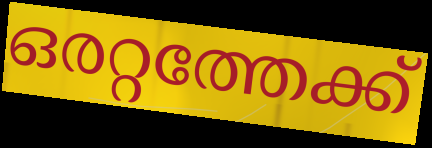
ഒരറ്റത്തേക്ക്